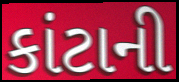
કાંટાની